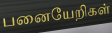
பனையேறிகள்